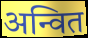
अन्वित